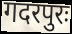
गदरपुरः